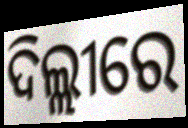
ଦିଲ୍ଲୀରେ